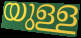
യുള്ള